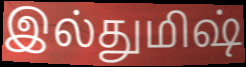
இல்துமிஷ்